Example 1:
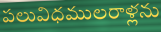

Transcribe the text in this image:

పలువిధములరాళ్లను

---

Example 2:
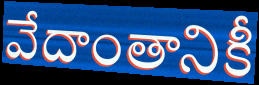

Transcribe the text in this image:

వేదాంతానికీ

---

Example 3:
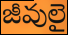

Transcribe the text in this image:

జీవులై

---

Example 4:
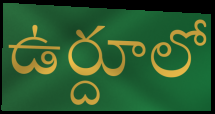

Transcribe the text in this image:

ఉర్దూలో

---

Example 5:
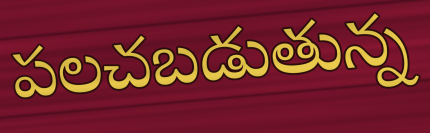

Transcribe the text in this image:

పలచబడుతున్న